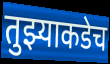
तुझ्याकडेच